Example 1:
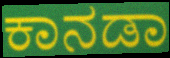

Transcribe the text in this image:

ಕಾನಡಾ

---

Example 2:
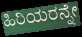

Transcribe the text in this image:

ಹಿರಿಯರನ್ನೇ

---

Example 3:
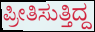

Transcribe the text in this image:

ಪ್ರೀತಿಸುತ್ತಿದ್ದ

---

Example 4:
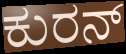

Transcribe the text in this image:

ಕುರನ್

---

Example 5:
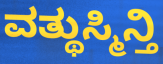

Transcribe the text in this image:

ವತ್ಥುಸ್ಮಿನ್ತಿ